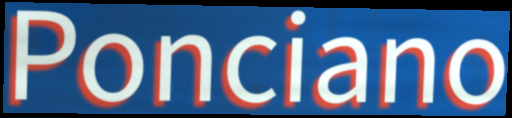
Ponciano